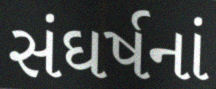
સંઘર્ષનાં